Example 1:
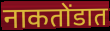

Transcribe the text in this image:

नाकतोंडात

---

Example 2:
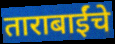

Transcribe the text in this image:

ताराबाईंचे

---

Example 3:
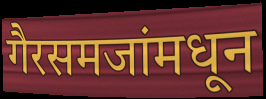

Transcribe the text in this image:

गैरसमजांमधून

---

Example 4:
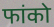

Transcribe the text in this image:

फांको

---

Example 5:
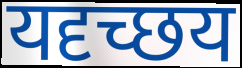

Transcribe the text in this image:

यदृच्छय